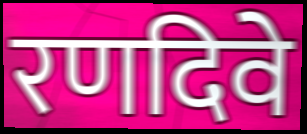
रणदिवे